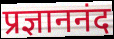
प्रज्ञाननंद